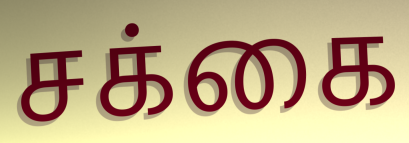
சக்கை